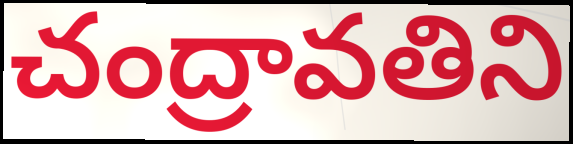
చంద్రావతిని